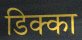
डिक्का